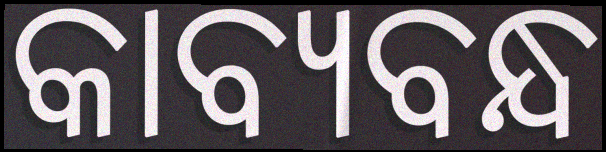
କାବ୍ୟବନ୍ଧ